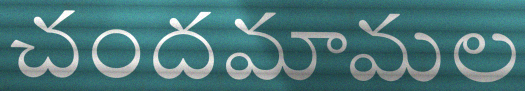
చందమామల